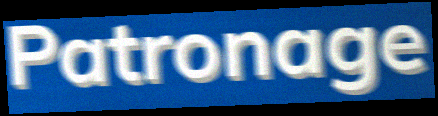
Patronage